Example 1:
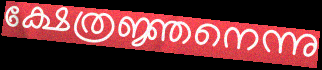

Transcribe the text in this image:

ക്ഷേത്രജ്ഞനെന്നു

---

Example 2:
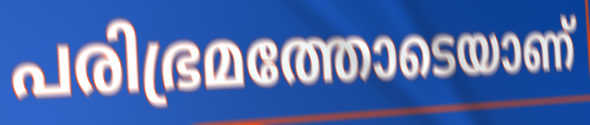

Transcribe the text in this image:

പരിഭ്രമത്തോടെയാണ്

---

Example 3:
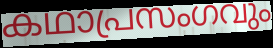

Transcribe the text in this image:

കഥാപ്രസംഗവും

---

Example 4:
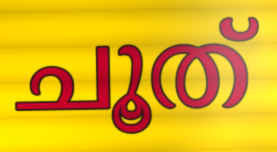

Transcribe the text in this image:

ചൂത്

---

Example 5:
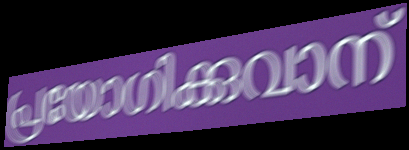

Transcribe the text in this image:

പ്രയോഗിക്കുവാന്